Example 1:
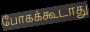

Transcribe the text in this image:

போகக்கூடாது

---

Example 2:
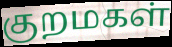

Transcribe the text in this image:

குறமகள்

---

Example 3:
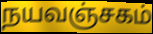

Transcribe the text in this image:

நயவஞ்சகம்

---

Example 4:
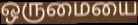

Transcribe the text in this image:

ஒருமையை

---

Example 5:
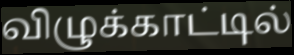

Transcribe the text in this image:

விழுக்காட்டில்